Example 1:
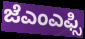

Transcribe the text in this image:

ಜೆಎಂಎಫ್ಸಿ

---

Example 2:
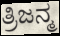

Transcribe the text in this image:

ತ್ರಿಜನ್ಮ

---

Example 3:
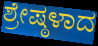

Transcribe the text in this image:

ಶ್ರೇಷ್ಠಳಾದ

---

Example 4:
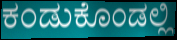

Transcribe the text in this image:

ಕಂಡುಕೊಂಡಲ್ಲಿ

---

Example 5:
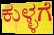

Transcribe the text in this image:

ಕುಳ್ಳಗೆ